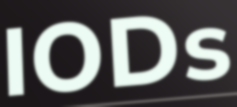
IODs